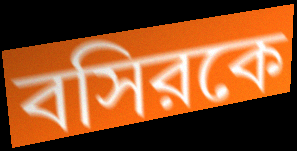
বসিরকে